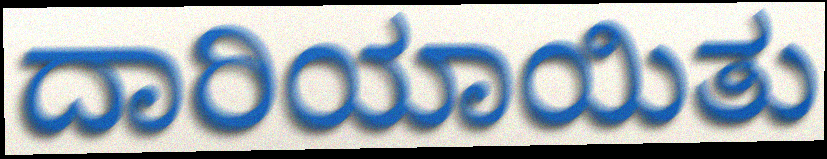
ದಾರಿಯಾಯಿತು